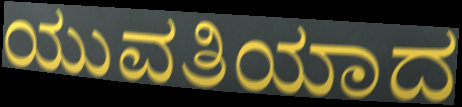
ಯುವತಿಯಾದ